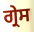
ਗ੍ਰੇਸ